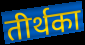
तीर्थका